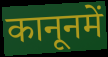
कानूनमें